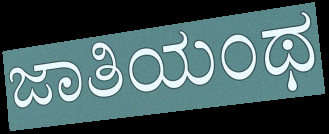
ಜಾತಿಯಂಥ